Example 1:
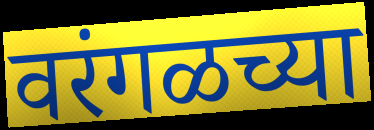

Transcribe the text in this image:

वरंगळच्या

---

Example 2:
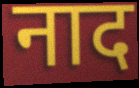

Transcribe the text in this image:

नाद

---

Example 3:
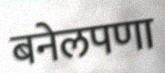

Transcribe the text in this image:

बनेलपणा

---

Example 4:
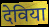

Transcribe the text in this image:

देविया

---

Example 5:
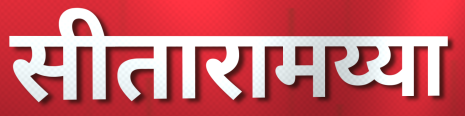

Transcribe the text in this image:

सीतारामय्या